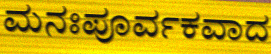
ಮನಃಪೂರ್ವಕವಾದ